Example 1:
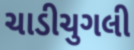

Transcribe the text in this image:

ચાડીચુગલી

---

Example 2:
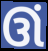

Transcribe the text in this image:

ઊં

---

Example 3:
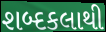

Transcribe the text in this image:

શબ્દકલાથી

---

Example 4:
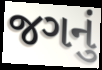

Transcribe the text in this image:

જગનું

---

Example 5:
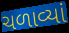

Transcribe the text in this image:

ચળાવ્યાં